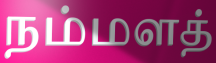
நம்மளத்